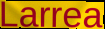
Larrea